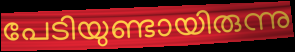
പേടിയുണ്ടായിരുന്നു